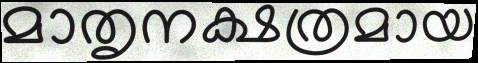
മാതൃനക്ഷത്രമായ